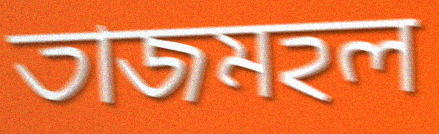
তাজমহল